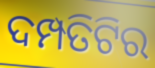
ଦମ୍ପତିଟିର